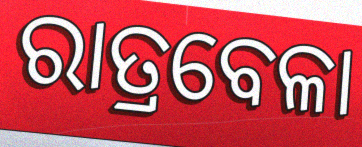
ରାତ୍ରବେଳା